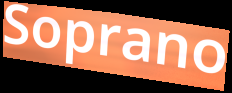
Soprano